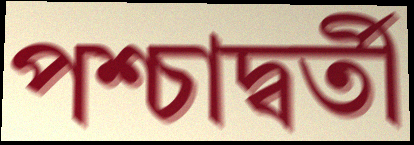
পশ্চাদ্বর্তী